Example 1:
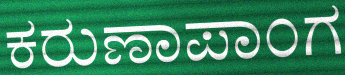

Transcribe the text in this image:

ಕರುಣಾಪಾಂಗ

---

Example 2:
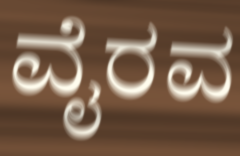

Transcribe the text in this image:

ವೈರವ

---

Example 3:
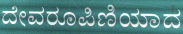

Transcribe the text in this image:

ದೇವರೂಪಿಣಿಯಾದ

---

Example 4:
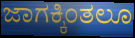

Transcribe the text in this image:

ಜಾಗಕ್ಕಿಂತಲೂ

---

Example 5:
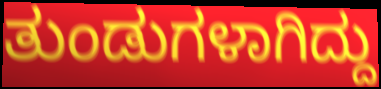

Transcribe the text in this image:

ತುಂಡುಗಳಾಗಿದ್ದು